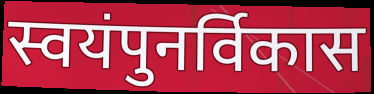
स्वयंपुनर्विकास